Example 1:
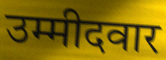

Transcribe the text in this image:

उम्‍मीदवार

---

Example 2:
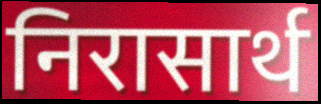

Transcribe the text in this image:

निरासार्थ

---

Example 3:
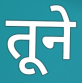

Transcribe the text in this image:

तूने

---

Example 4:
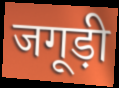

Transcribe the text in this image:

जगूड़ी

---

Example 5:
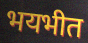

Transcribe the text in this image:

भयभीत